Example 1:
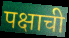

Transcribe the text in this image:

पक्षाची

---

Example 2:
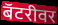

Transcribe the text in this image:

बॅटरीवर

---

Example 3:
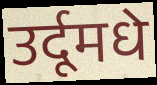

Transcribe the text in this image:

उर्दूमधे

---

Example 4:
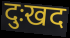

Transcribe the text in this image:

दुःखद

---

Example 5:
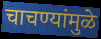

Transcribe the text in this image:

चाचण्यांमुळे